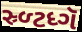
સ્ર્ળ્ટધ્ગૅ